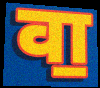
वा॒